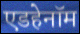
एडहेनॉम